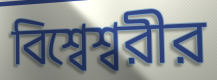
বিশ্বেশ্বরীর